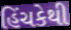
હિંચકેથી